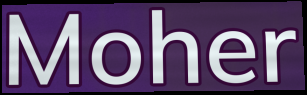
Moher